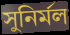
সুনির্মল